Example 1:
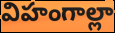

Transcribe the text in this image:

విహంగాల్లా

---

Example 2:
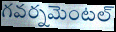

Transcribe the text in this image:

గవర్నమెంటల్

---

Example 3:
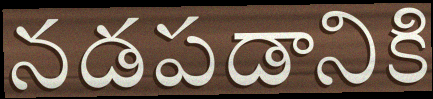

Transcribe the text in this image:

నడపడానికి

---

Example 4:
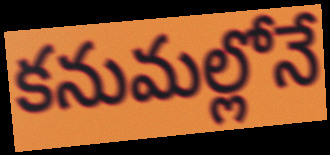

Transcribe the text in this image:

కనుమల్లోనే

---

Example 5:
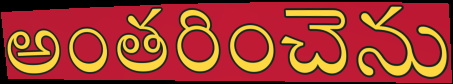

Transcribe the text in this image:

అంతరించెను